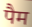
पैम